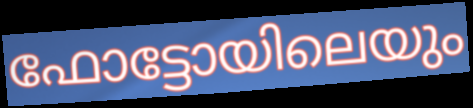
ഫോട്ടോയിലെയും